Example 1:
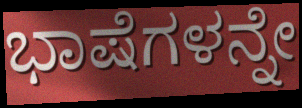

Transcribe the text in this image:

ಭಾಷೆಗಳನ್ನೇ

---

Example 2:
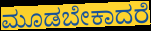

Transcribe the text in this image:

ಮೂಡಬೇಕಾದರೆ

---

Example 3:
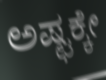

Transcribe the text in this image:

ಅಷ್ಟಕ್ಕೇ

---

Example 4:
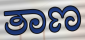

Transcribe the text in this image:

ತಾಣ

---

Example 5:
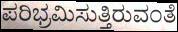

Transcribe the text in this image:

ಪರಿಭ್ರಮಿಸುತ್ತಿರುವಂತೆ